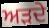
ਅੜਦੇ